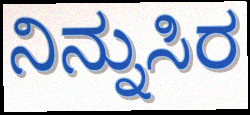
ನಿನ್ನುಸಿರ